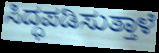
ಸಿದ್ಧಪಡಿಸುತ್ತಾಳೆ